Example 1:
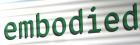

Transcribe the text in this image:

embodied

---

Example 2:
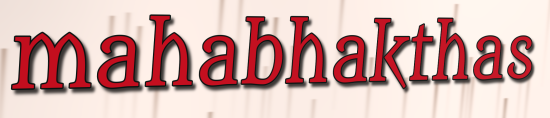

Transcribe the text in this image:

mahabhakthas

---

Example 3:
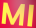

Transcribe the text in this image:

MI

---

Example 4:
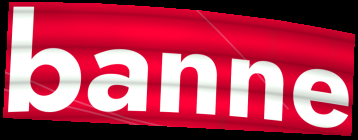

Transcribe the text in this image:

banne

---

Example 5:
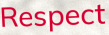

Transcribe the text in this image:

Respect